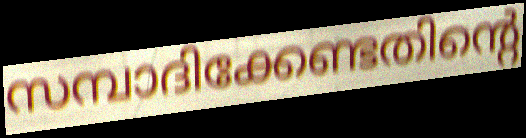
സമ്പാദിക്കേണ്ടതിന്റെ